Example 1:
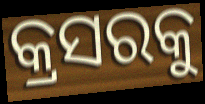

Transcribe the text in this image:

କ୍ରସରକୁ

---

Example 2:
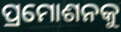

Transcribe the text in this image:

ପ୍ରମୋଶନକୁ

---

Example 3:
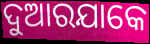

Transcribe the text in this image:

ଦୁଆରଯାକେ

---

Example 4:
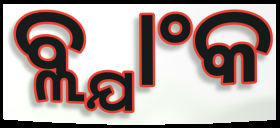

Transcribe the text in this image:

ବ୍ଲ୍ଯାଂକ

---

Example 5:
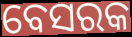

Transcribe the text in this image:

ବେସରକ